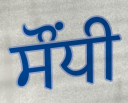
ਸੌਂਧੀ